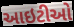
આઇટીઓ